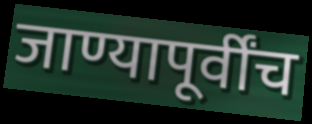
जाण्यापूर्वींच